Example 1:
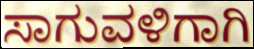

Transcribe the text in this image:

ಸಾಗುವಳಿಗಾಗಿ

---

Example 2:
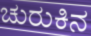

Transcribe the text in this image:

ಚುರುಕಿನ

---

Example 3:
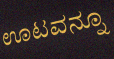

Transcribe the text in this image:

ಊಟವನ್ನೂ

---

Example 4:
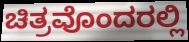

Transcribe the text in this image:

ಚಿತ್ರವೊಂದರಲ್ಲಿ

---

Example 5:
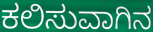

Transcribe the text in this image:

ಕಲಿಸುವಾಗಿನ